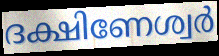
ദക്ഷിണേശ്വർ